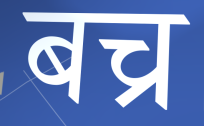
बच्र